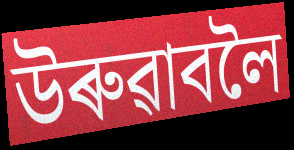
উৰুৱাবলৈ